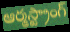
ఆర్మస్ట్రాంగ్